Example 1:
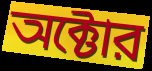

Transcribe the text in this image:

অক্টোর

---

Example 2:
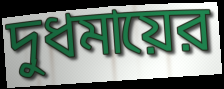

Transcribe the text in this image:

দুধমায়ের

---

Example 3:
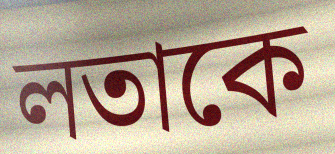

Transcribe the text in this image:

লতাকে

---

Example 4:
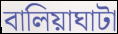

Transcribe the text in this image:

বালিয়াঘাটা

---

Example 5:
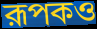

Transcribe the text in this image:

রূপকও